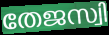
തേജസ്വി